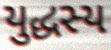
યુદ્ધસ્ય